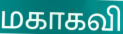
மகாகவி